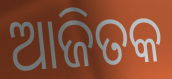
ଆଜିତକ